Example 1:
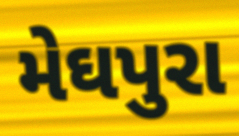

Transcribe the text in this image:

મેઘપુરા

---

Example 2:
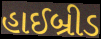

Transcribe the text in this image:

હાઈબ્રીડ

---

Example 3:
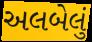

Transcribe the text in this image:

અલબેલું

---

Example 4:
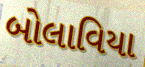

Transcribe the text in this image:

બોલાવિયા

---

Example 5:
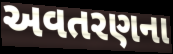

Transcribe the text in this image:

અવતરણના